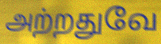
அற்றதுவே